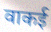
वाकई